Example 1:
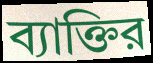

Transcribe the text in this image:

ব্যাক্তির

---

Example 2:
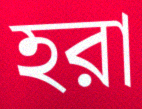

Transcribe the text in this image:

হরা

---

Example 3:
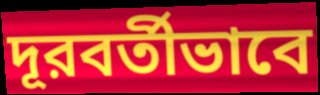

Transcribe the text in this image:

দূরবর্তীভাবে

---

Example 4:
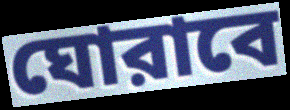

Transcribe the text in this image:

ঘোরাবে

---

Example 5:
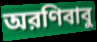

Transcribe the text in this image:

অরণিবাবু